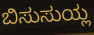
ಬಿಸುಸುಯ್ಲ